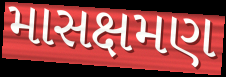
માસક્ષમણ